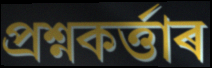
প্ৰশ্নকৰ্ত্তাৰ